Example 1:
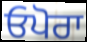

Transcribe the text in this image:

ਓਪੋਰਾ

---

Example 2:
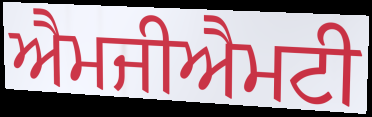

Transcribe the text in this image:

ਐਮਜੀਐਮਟੀ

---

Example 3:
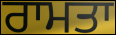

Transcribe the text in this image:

ਰਾਮਤਾ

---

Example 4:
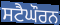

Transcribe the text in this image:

ਸਟੈਘੌਰਨ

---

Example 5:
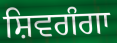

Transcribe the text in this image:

ਸ਼ਿਵਗੰਗਾ